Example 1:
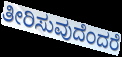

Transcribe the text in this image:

ತೀರಿಸುವುದೆಂದರೆ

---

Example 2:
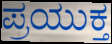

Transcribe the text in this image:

ಪ್ರಯುಕ್ತ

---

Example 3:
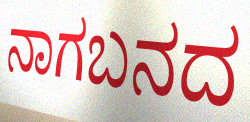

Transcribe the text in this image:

ನಾಗಬನದ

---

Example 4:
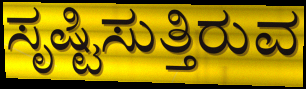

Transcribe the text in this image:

ಸೃಷ್ಟಿಸುತ್ತಿರುವ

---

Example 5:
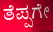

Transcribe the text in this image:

ತೆಪ್ಪಗೇ